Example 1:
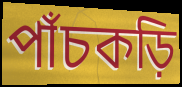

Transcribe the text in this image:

পাঁচকড়ি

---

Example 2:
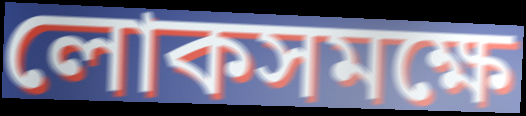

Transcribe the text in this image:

লোকসমক্ষে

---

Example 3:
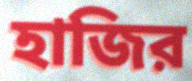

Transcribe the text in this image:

হাজির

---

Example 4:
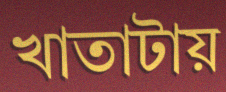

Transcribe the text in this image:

খাতাটায়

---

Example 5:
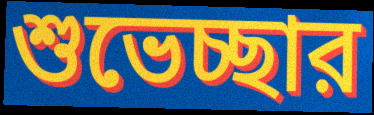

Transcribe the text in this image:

শুভেচ্ছার